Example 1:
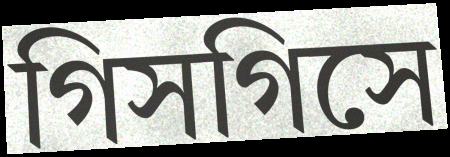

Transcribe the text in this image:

গিসগিসে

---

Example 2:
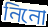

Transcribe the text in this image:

নিনো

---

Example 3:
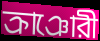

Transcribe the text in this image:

ক্রাঞোরী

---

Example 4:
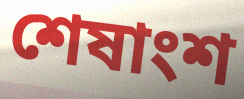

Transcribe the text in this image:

শেষাংশ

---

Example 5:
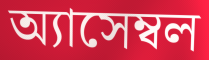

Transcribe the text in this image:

অ্যাসেম্বল